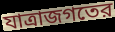
যাত্রাজগতের